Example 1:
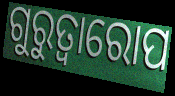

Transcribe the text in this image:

ଗୁରୁତ୍ବାରୋପ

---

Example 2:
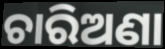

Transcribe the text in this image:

ଚାରିଅଣା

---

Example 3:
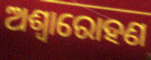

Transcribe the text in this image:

ଅଶ୍ୱାରୋହଣ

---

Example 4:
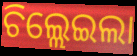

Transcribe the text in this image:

ଚିଲ୍ଲେଇଲା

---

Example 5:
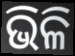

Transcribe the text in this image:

ଭିଳି